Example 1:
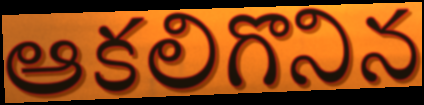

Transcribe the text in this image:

ఆకలిగొనిన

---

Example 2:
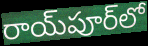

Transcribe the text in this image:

రాయ్‌పూర్‌లో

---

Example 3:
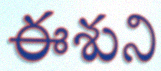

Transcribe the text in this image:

ఈశుని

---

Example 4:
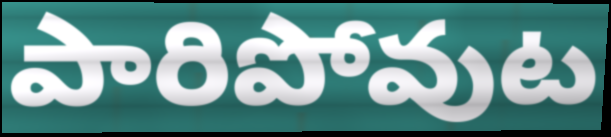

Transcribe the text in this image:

పారిపోవుట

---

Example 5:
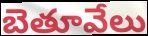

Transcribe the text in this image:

బెతూవేలు